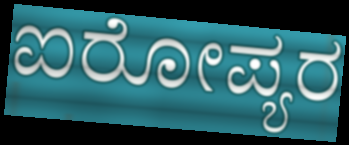
ಐರೋಪ್ಯರ